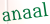
anaal